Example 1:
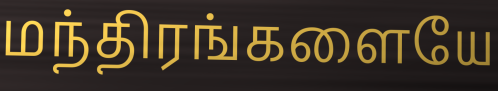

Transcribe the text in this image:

மந்திரங்களையே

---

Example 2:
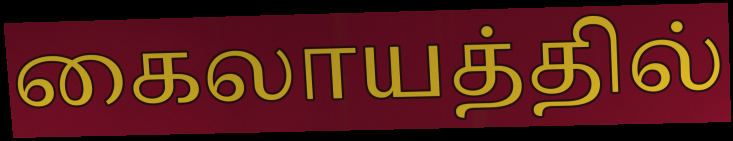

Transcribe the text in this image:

கைலாயத்தில்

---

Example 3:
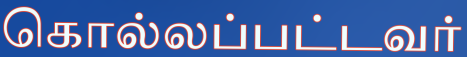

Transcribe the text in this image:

கொல்லப்பட்டவர்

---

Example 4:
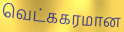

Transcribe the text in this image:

வெட்ககரமான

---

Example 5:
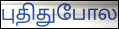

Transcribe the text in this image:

புதிதுபோல